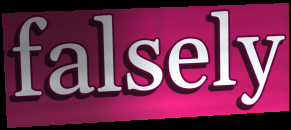
falsely